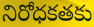
నిరోధకతకు